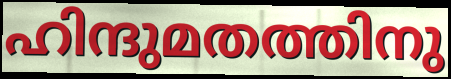
ഹിന്ദുമതത്തിനു